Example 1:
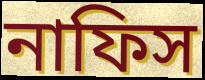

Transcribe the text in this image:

নাফিস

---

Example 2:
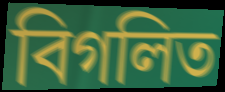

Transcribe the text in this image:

বিগলিত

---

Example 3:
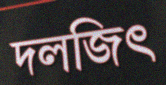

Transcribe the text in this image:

দলজিৎ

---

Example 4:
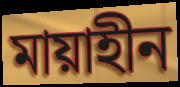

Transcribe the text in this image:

মায়াহীন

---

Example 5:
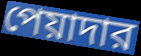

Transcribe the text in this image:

পেয়াদার